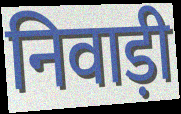
निवाड़ी